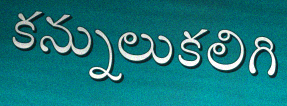
కన్నులుకలిగి